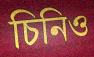
চিনিও